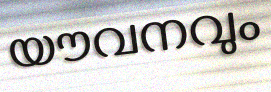
യൗവനവും